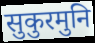
सुकुरमुनि